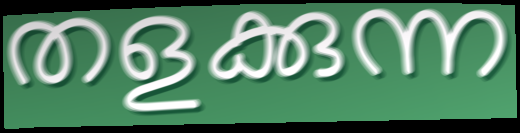
തളക്കുന്ന